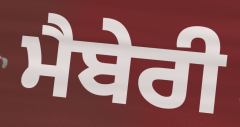
ਮੈਬੇਰੀ